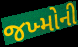
જખ્મોની